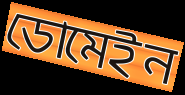
ডোমেইন